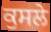
ਕੁਸਲੇ